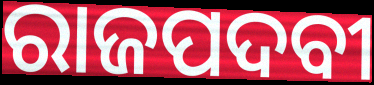
ରାଜପଦବୀ